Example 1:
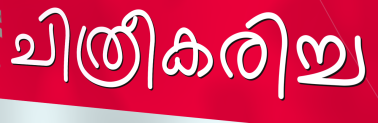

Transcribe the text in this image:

ചിത്രീകരിച്ച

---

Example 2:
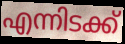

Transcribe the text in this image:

എന്നിടക്ക്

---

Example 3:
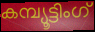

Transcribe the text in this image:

കമ്പ്യൂട്ടിംഗ്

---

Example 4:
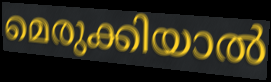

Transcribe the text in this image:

മെരുക്കിയാൽ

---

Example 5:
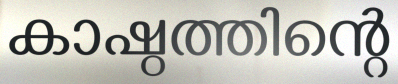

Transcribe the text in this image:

കാഷ്ഠത്തിന്റെ